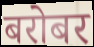
बरोबर